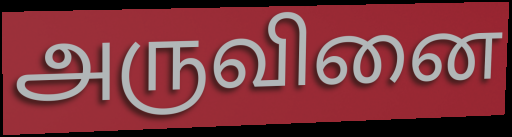
அருவினை